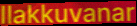
Ilakkuvanar